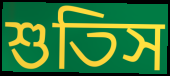
শুতিস